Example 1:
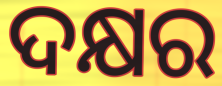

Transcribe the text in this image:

ଦକ୍ଷର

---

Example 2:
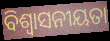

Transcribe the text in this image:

ବିଶ୍ୱାସନୀୟତା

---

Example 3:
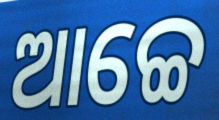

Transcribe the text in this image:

ଆଚ୍ଚେ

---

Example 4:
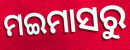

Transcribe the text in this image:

ମଇମାସରୁ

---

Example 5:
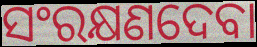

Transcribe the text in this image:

ସଂରକ୍ଷଣଦେବା